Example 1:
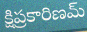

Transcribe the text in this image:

క్షిప్రకారిణమ్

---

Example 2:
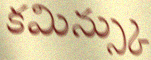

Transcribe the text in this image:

కమిన్స్కు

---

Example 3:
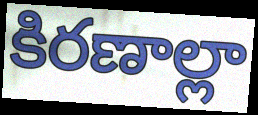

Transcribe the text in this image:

కిరణాల్లా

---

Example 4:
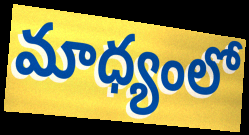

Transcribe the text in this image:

మాధ్యంలో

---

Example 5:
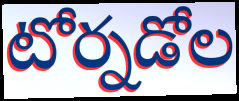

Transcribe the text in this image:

టోర్నడోల